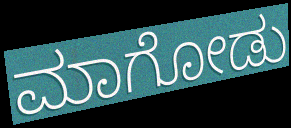
ಮಾಗೋಡು